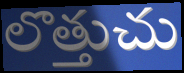
లొత్తుచు